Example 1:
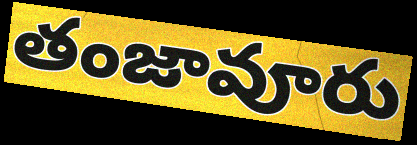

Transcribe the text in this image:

తంజావూరు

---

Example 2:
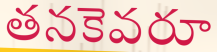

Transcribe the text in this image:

తనకెవరూ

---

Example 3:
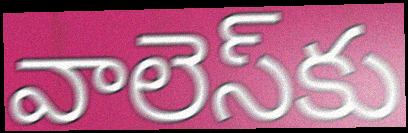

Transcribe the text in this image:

వాలెస్‌కు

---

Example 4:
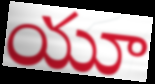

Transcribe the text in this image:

యూ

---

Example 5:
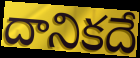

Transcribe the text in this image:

దానికదే